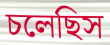
চলেছিস